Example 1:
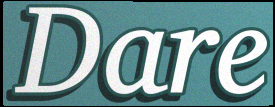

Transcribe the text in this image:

Dare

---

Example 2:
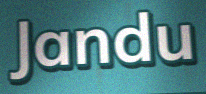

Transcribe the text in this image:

Jandu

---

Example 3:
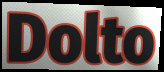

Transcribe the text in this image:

Dolto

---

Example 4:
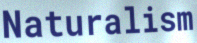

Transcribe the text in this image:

Naturalism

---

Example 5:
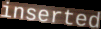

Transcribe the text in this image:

inserted